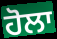
ਹੋਲਾ